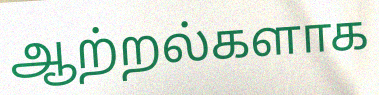
ஆற்றல்களாக